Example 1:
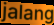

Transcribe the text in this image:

jalang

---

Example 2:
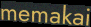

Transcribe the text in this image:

memakai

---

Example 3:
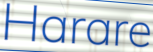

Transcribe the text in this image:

Harare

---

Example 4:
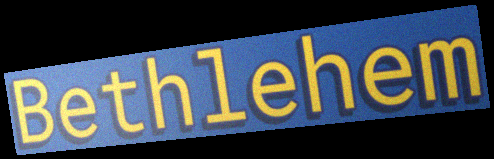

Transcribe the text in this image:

Bethlehem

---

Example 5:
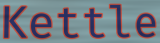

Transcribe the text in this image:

Kettle